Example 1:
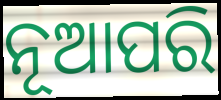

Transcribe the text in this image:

ନୂଆପରି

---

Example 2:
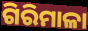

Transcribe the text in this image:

ଗିରିମାଳା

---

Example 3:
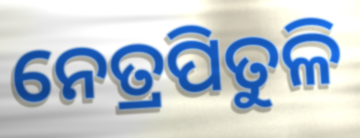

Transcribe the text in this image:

ନେତ୍ରପିତୁଳି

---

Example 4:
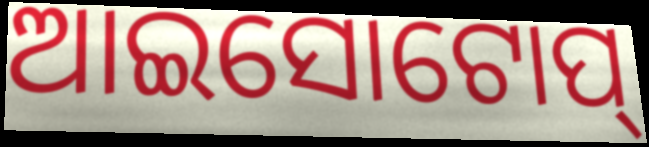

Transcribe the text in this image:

ଆଇସୋଟୋପ୍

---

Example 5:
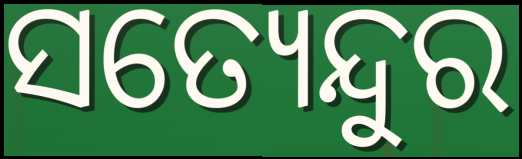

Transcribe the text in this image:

ସତ୍ୟେନ୍ଦୁର